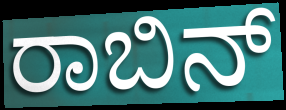
ರಾಬಿನ್